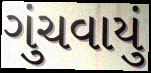
ગુંચવાયું